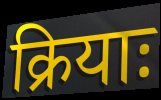
क्रियाः